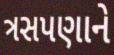
ત્રસપણાને